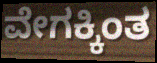
ವೇಗಕ್ಕಿಂತ